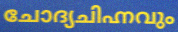
ചോദ്യചിഹ്നവും